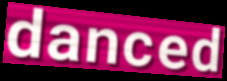
danced